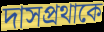
দাসপ্রথাকে